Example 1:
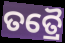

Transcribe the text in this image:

ତତ୍ରୈ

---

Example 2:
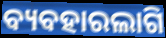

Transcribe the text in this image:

ବ୍ୟବହାରଲାଗି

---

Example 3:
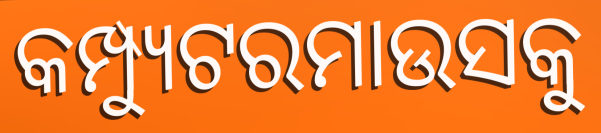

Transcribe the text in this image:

କମ୍ପ୍ୟୁଟରମାଉସକୁ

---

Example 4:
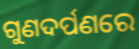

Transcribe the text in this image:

ଗୁଣଦର୍ପଣରେ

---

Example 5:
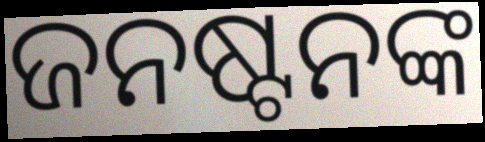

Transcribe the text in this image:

ଜନଷ୍ଟନଙ୍କ